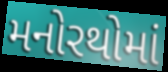
મનોરથોમાં